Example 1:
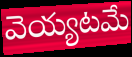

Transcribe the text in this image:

వెయ్యటమే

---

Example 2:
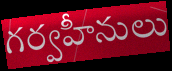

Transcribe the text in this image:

గర్వహీనులు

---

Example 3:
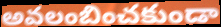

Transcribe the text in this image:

అవలంబించకుండా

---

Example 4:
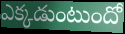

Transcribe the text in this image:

ఎక్కడుంటుందో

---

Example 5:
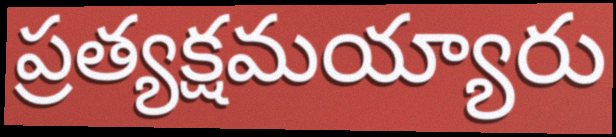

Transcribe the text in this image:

ప్రత్యక్షమయ్యారు